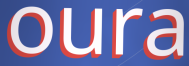
oura